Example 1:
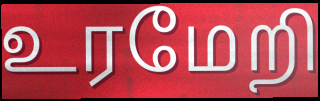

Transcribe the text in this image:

உரமேறி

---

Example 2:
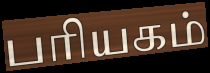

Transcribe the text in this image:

பரியகம்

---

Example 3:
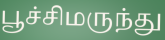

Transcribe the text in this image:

பூச்சிமருந்து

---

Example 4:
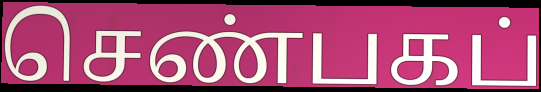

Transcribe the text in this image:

செண்பகப்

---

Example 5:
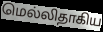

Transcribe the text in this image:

மெல்லிதாகிய